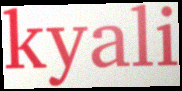
kyali